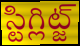
స్టిగ్లిట్జ్